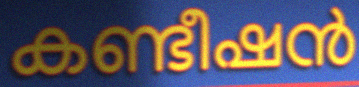
കണ്ടീഷൻ